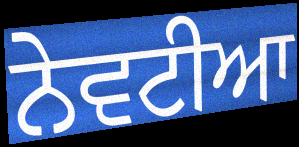
ਨੇਵਟੀਆ